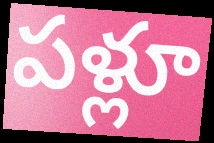
పళ్లూ